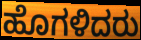
ಹೊಗಳಿದರು